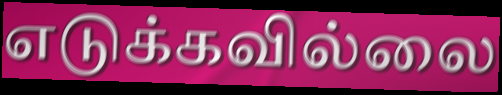
எடுக்கவில்லை